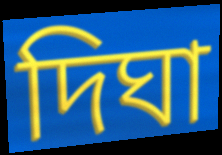
দিঘা